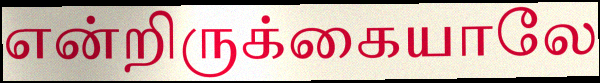
என்றிருக்கையாலே